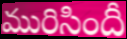
మురిసిందీ